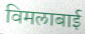
विमलाबाई